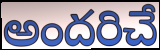
అందరిచే